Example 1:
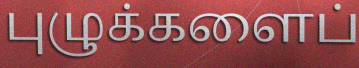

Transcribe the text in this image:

புழுக்களைப்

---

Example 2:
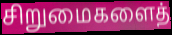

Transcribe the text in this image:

சிறுமைகளைத்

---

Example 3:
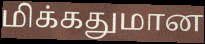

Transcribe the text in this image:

மிக்கதுமான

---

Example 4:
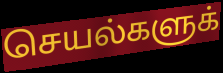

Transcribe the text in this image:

செயல்களுக்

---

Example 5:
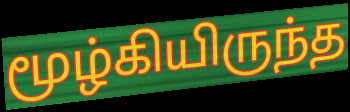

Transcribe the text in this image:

மூழ்கியிருந்த